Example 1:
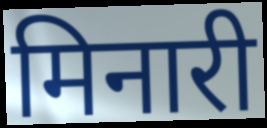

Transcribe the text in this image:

मिनारी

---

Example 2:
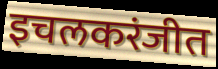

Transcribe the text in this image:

इचलकरंजीत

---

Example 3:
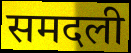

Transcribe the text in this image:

समदली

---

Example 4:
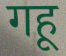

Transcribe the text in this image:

गहू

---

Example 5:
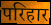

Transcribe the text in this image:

परिहार